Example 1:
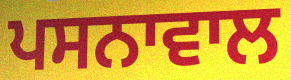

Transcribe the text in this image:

ਪਸਨਾਵਾਲ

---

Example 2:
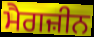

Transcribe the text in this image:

ਮੈਗਜ਼ੀਨ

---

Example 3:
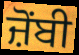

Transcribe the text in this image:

ਜ਼ੋਂਬੀ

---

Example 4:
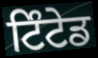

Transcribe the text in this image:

ਟਿੰਟੇਡ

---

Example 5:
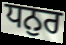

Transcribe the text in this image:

ਧਨੁਰ